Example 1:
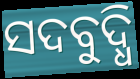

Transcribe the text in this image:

ସଦବୁଦ୍ଧି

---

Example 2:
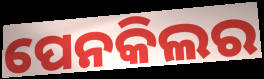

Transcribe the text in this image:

ପେନକିଲର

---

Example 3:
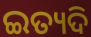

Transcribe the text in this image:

ଇତ୍ୟଦି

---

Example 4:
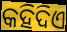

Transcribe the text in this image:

କହିଦିଏ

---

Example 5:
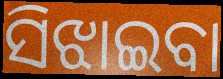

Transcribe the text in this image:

ସିଝାଇବା